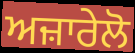
ਅਜ਼ਾਰੇਲੋ